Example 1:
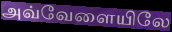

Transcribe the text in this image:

அவ்வேளையிலே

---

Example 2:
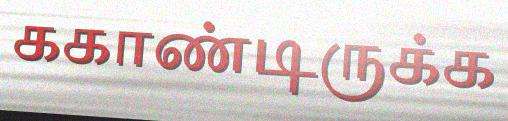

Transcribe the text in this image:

ககாண்டிருக்க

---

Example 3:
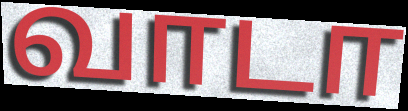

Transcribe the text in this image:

வாடா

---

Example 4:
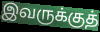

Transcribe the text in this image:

இவருக்குத்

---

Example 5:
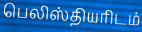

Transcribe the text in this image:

பெலிஸ்தியரிடம்